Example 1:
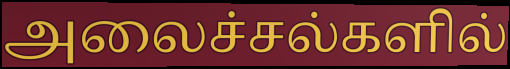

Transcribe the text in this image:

அலைச்சல்களில்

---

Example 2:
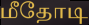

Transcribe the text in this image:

மீதோடி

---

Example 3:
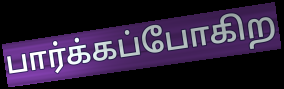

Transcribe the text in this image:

பார்க்கப்போகிற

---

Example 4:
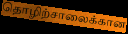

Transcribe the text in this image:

தொழிற்சாலைக்கான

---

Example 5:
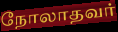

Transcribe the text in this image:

நோலாதவர்